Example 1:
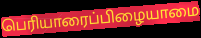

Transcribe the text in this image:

பெரியாரைப்பிழையாமை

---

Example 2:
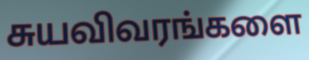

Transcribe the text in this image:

சுயவிவரங்களை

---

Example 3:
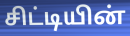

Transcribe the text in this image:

சிட்டியின்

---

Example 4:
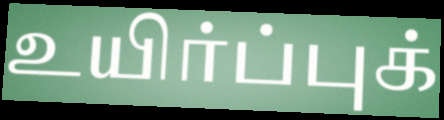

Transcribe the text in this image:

உயிர்ப்புக்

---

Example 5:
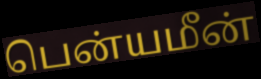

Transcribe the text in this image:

பென்யமீன்